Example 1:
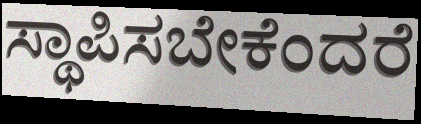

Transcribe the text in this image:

ಸ್ಥಾಪಿಸಬೇಕೆಂದರೆ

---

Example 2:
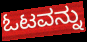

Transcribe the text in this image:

ಓಟವನ್ನು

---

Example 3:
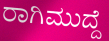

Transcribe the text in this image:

ರಾಗಿಮುದ್ದೆ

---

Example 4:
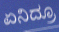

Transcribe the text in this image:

ಏನಿದ್ರೂ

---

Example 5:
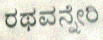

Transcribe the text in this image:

ರಥವನ್ನೇರಿ